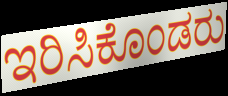
ಇರಿಸಿಕೊಂಡರು